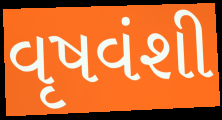
વૃષવંશી